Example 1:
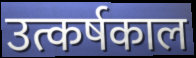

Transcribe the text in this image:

उत्कर्षकाल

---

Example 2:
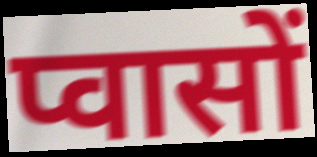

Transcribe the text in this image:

प्वासों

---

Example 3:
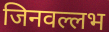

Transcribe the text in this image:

जिनवल्लभ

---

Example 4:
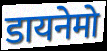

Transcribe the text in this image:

डायनेमो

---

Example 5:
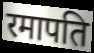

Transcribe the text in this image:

रमापति